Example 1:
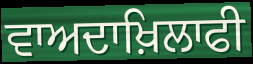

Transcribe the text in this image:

ਵਾਅਦਾਖ਼ਿਲਾਫੀ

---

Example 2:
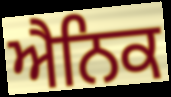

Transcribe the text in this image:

ਐਨਿਕ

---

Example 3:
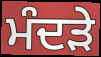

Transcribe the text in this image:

ਮੰਦੜੇ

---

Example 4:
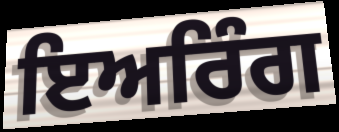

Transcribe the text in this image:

ਇਅਰਿੰਗ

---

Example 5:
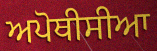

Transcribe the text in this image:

ਅਪੋਥੀਸੀਆ